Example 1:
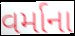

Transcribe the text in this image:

વર્માના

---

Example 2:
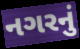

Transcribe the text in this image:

નગરનું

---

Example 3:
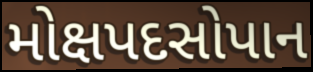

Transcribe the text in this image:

મોક્ષપદસોપાન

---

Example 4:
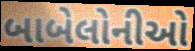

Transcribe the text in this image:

બાબેલોનીઓ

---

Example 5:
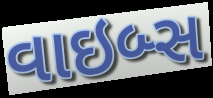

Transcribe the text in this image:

વાઇબ્સ